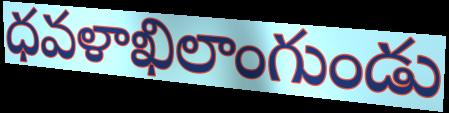
ధవళాఖిలాంగుండు